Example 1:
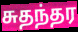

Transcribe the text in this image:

சுதந்தர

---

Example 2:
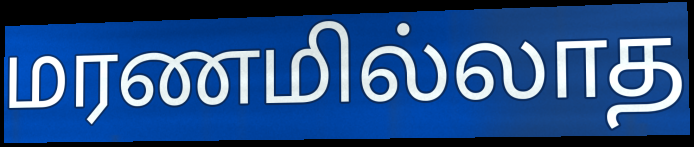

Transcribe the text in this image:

மரணமில்லாத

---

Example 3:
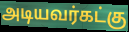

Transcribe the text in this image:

அடியவர்கட்கு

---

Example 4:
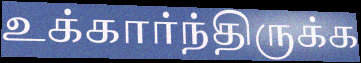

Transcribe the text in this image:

உக்கார்ந்திருக்க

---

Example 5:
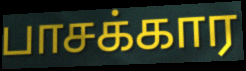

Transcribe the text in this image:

பாசக்கார